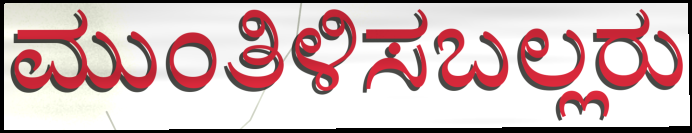
ಮುಂತಿಳಿಸಬಲ್ಲರು